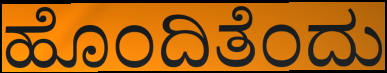
ಹೊಂದಿತೆಂದು